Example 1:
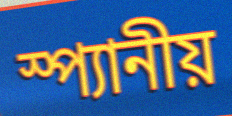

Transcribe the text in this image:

স্প্যানীয়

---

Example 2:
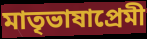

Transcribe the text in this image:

মাতৃভাষাপ্রেমী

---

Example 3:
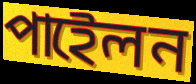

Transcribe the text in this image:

পাইেলন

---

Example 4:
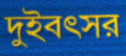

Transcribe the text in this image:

দুইবৎসর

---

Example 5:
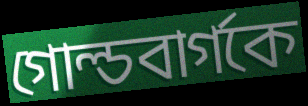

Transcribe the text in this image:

গোল্ডবার্গকে